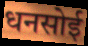
धनसोई